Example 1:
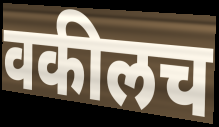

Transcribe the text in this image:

वकीलच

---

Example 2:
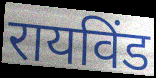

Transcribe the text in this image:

रायविंड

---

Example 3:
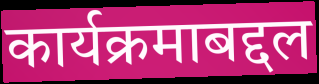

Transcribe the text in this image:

कार्यक्रमाबद्दल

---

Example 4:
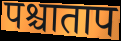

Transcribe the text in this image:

पश्चाताप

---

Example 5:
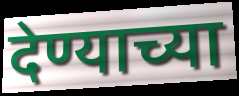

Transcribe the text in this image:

देण्याच्या